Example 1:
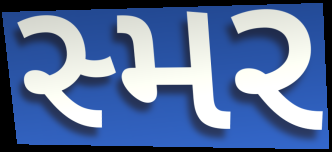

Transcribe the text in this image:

સ્મર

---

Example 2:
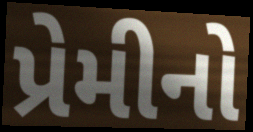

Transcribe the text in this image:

પ્રેમીનો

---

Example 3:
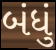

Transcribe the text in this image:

બંધું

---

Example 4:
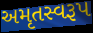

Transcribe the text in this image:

અમૃતસ્વરૂપ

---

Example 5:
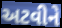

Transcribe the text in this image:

અટવીને